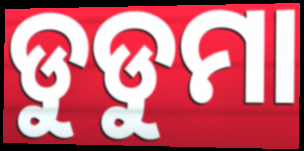
ଡୁଡୁମା